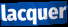
lacquer